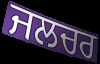
ਜਲਚਰ